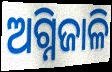
ଅଗ୍ନିଜାଳି